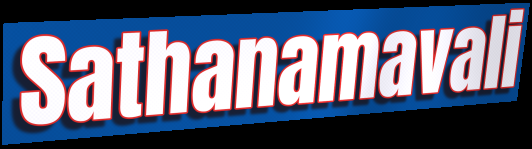
Sathanamavali